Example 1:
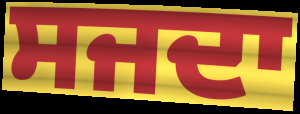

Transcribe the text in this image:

ਸਜਦਾ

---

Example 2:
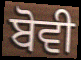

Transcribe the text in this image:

ਬੋਵੀ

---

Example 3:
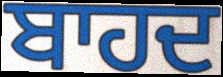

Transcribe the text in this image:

ਬਾਹਦ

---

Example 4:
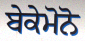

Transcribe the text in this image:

ਬੇਕੇਮੋਨੋ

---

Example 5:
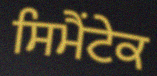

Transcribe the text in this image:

ਸਿਮੈਂਟੇਕ